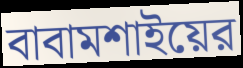
বাবামশাইয়ের